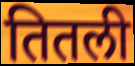
तितली